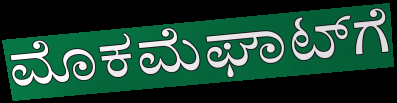
ಮೊಕಮೆಘಾಟ್‌ಗೆ